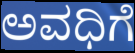
ಅವಧಿಗೆ